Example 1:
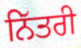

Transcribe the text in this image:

ਨਿੱਤਰੀ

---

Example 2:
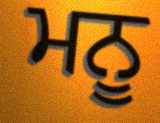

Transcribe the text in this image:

ਮਨੂ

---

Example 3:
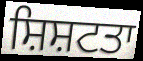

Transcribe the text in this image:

ਸ਼ਿਸ਼ਟਤਾ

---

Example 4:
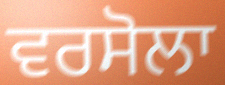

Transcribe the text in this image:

ਵਰਸੋਲਾ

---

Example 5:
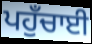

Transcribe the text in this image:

ਪਹੁਁਚਾਈ